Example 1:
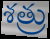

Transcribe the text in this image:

శత్రు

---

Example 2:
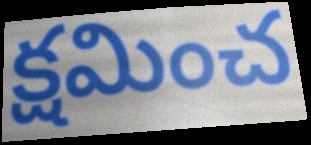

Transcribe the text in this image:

క్షమించ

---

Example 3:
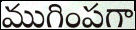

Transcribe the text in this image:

ముగింపగా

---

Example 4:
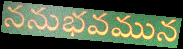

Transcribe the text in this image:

ననుభవమున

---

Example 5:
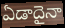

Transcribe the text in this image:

ఏడాదైనా